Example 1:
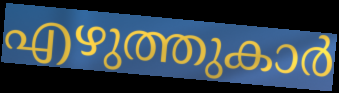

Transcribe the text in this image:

എഴുത്തുകാർ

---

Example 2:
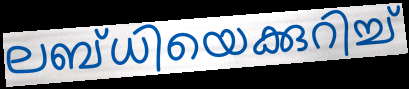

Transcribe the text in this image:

ലബ്ധിയെക്കുറിച്ച്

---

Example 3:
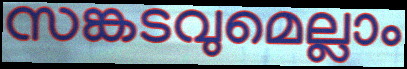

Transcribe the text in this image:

സങ്കടവുമെല്ലാം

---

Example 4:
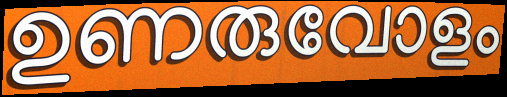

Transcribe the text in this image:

ഉണരുവോളം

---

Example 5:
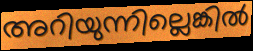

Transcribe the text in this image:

അറിയുന്നില്ലെങ്കിൽ